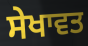
ਸੇਖਾਵਤ